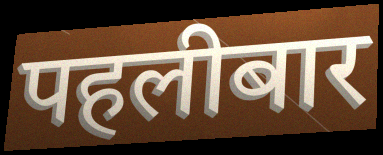
पहलीबार